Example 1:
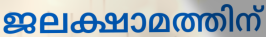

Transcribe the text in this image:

ജലക്ഷാമത്തിന്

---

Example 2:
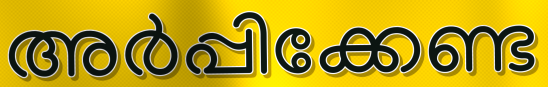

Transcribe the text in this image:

അർപ്പിക്കേണ്ട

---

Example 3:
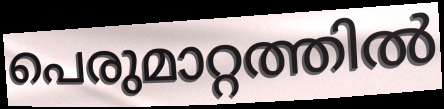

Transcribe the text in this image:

പെരുമാറ്റത്തിൽ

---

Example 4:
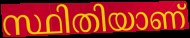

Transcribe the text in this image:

സ്ഥിതിയാണ്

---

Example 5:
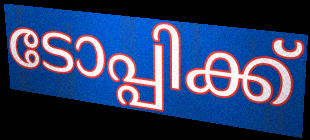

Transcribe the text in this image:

ടോപ്പിക്ക്